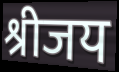
श्रीजय